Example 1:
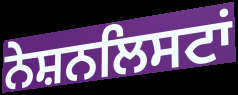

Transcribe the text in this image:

ਨੇਸ਼ਨਲਿਸਟਾਂ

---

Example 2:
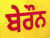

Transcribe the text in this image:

ਬੇਰੌਨ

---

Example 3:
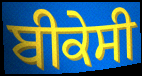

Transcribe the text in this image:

ਬੀਕੇਸੀ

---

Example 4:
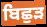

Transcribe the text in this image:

ਬਿਛੁੜ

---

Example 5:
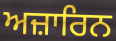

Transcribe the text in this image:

ਅਜ਼ਾਰਿਨ